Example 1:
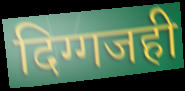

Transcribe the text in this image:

दिग्गजही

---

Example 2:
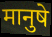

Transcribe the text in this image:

मानुषे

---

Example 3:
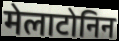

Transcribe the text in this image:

मेलाटोनिन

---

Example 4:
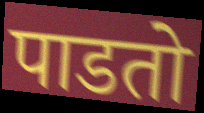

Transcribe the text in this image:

पाडतो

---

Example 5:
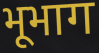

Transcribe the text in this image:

भूभाग